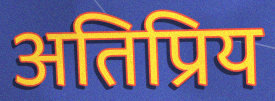
अतिप्रिय